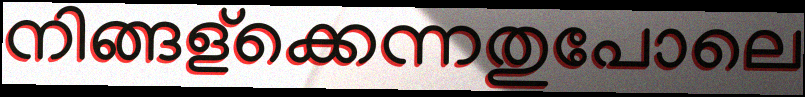
നിങ്ങള്ക്കെന്നതുപോലെ